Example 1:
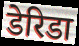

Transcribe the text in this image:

डेरिडा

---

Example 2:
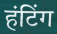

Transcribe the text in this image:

हंटिंग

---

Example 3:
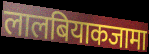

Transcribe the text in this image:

लालबियाकजामा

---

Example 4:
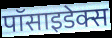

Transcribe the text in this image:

पॉसाइडेक्स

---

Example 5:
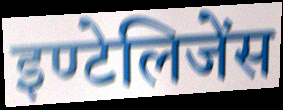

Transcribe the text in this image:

इण्टेलिजेंस